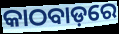
କାଠବାଡ଼ରେ